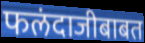
फलंदाजीबाबत